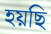
হয়ছি